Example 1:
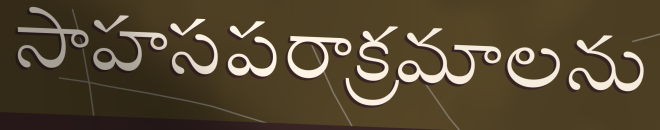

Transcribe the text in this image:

సాహసపరాక్రమాలను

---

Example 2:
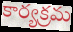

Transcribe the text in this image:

కార్యక్రమ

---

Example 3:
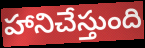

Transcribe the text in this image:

హానిచేస్తుంది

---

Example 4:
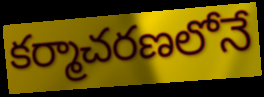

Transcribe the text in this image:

కర్మాచరణలోనే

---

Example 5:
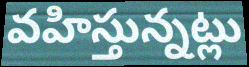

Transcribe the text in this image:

వహిస్తున్నట్లు